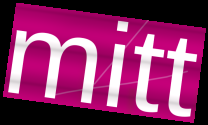
mitt